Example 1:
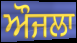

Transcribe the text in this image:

ਔਜਲਾ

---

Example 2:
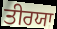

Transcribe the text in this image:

ਤੀਰਯਾ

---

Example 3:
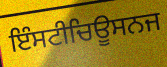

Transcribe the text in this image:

ਇੰਸਟੀਚਿਊਸਨਜ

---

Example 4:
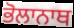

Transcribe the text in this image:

ਭੋਲਾਨਾਥ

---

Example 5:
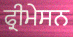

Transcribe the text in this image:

ਫ੍ਰੀਮੇਸਨ